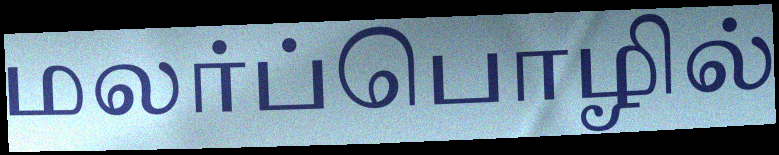
மலர்ப்பொழில்